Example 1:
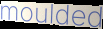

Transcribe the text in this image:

moulded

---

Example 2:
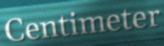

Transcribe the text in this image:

Centimeter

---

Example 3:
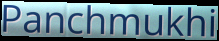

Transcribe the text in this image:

Panchmukhi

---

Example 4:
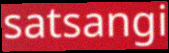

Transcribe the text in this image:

satsangi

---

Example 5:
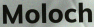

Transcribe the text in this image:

Moloch